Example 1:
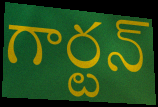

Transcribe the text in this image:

గార్టన్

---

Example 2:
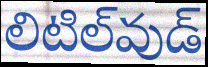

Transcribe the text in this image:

లిటిల్‌వుడ్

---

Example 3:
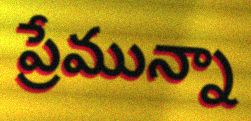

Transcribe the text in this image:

ప్రేమున్నా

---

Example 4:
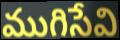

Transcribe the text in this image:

ముగిసేవి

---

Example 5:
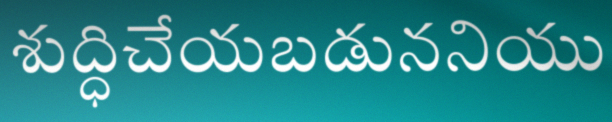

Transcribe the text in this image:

శుద్ధిచేయబడుననియు